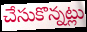
చేసుకొన్నట్లు